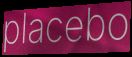
placebo